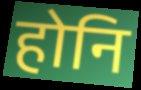
होनि